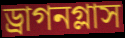
ড্রাগনগ্লাস